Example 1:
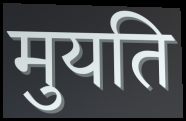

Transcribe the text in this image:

मुयति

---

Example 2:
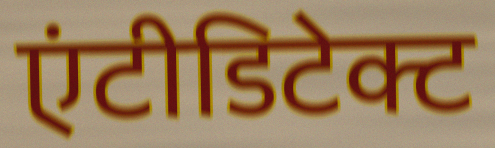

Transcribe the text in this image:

एंटीडिटेक्ट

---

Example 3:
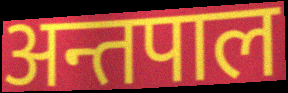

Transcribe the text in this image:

अन्तपाल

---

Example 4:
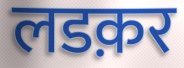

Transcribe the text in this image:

लडक़र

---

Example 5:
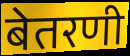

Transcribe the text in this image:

बेतरणी